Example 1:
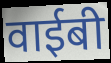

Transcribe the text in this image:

वाईबी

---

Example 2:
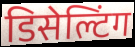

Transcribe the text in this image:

डिसेल्टिंग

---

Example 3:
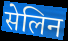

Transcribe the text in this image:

सेलिन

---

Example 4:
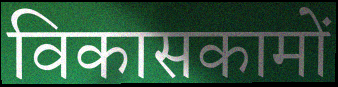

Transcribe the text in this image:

विकासकामों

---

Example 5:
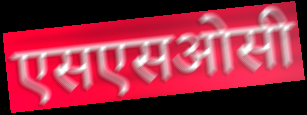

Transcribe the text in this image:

एसएसओसी